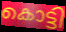
കൊട്ടി